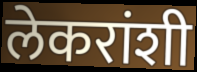
लेकरांशी